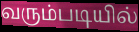
வரும்படியில்